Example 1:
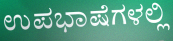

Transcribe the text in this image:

ಉಪಭಾಷೆಗಳಲ್ಲಿ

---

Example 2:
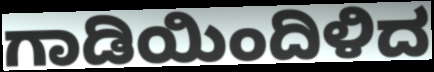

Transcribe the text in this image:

ಗಾಡಿಯಿಂದಿಳಿದ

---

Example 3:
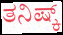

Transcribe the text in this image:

ತನಿಷ್ಕ್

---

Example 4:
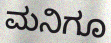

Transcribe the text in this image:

ಮನಿಗೂ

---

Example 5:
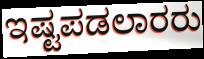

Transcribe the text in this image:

ಇಷ್ಟಪಡಲಾರರು